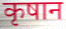
कृषान